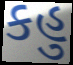
કહુ